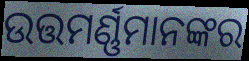
ଉତ୍ତମର୍ଣ୍ଣମାନଙ୍କର